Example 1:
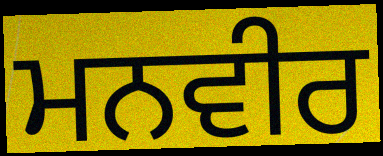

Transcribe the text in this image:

ਮਨਵੀਰ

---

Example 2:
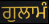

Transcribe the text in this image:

ਗੁਲਾਮੰ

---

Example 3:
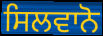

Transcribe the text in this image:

ਸਿਲਵਾਨੋ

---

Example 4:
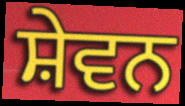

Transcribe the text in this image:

ਸ਼ੇਵਨ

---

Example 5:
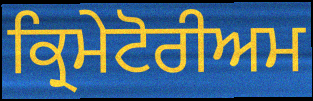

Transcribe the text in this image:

ਕ੍ਰਿਮੇਟੋਰੀਅਮ